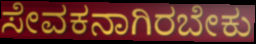
ಸೇವಕನಾಗಿರಬೇಕು